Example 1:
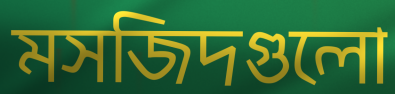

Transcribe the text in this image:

মসজিদগুলো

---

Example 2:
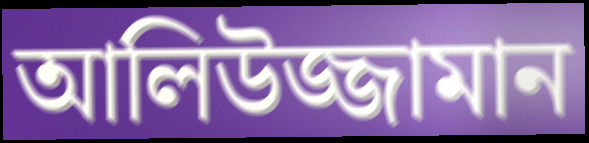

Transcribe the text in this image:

আলিউজ্জামান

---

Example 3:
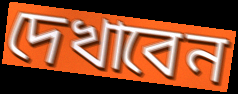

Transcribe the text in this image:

দেখাবেন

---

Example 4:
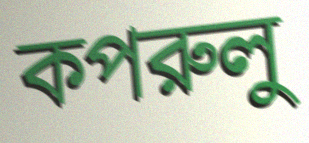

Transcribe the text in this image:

কপরুলু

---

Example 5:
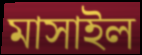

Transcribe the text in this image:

মাসাইল